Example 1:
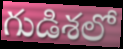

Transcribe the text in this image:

గుడిశలో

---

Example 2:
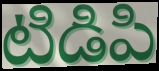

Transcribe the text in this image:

టిడిపి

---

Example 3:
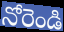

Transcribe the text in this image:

నోరెండి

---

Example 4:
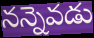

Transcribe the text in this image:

నన్నెవడు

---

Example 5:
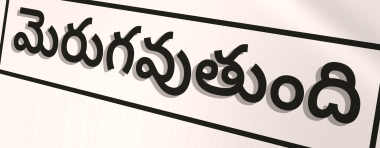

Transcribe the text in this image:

మెరుగవుతుంది